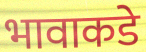
भावाकडे